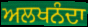
ਅਲਖਨੰਦਾ